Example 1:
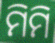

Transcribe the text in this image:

ମିମି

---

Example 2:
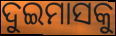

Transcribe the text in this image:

ଦୁଇମାସକୁ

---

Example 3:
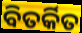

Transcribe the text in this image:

ବିତର୍କିତ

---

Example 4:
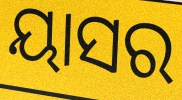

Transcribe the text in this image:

ୟାସର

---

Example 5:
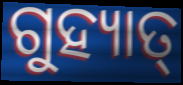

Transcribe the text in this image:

ଗୁହ୍ୟାତ୍